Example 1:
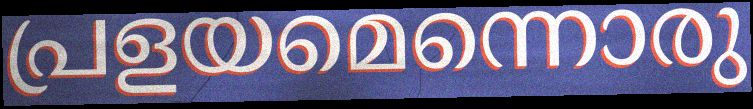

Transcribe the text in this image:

പ്രളയമെന്നൊരു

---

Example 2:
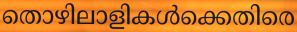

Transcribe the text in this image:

തൊഴിലാളികൾക്കെതിരെ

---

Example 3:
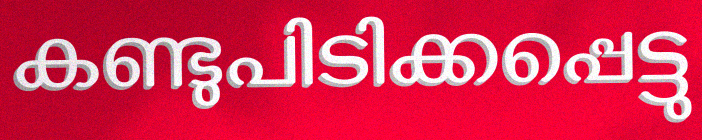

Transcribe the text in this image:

കണ്ടുപിടിക്കപ്പെട്ടു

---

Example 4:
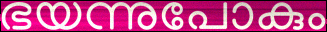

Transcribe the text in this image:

ഭയന്നുപോകും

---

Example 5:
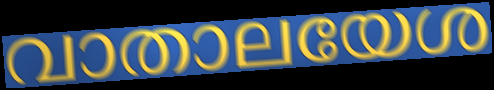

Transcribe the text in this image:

വാതാലയേശ